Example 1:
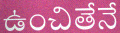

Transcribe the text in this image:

ఉంచితేనే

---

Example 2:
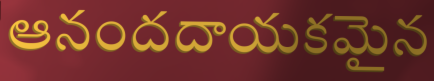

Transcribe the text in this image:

ఆనందదాయకమైన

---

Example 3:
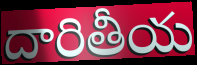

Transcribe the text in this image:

దారితీయ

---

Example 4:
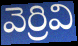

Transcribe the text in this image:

వెర్రివి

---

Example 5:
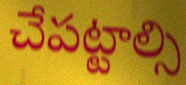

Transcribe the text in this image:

చేపట్టాల్సి